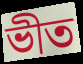
ভীত